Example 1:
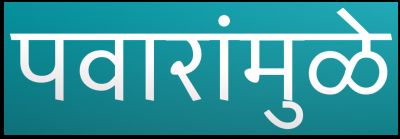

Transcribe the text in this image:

पवारांमुळे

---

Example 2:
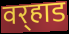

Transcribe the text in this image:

वर्‍हाड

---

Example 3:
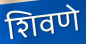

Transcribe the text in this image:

शिवणे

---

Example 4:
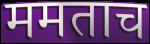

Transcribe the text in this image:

ममताच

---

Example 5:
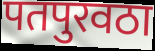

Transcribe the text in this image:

पतपुरवठा